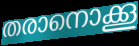
തരാനൊക്കൂ